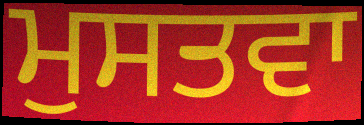
ਮੁਸਤਵਾ